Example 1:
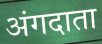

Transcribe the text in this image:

अंगदाता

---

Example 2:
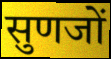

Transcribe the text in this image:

सुणजों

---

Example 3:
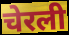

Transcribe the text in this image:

चेरली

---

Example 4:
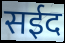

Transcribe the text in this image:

सईद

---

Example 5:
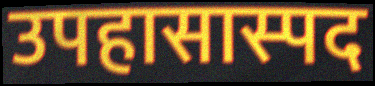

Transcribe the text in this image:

उपहासास्पद